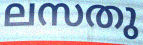
ലസതു